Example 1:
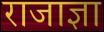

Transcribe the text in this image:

राजाज्ञा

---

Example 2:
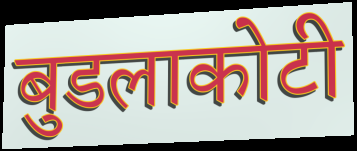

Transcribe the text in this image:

बुडलाकोटी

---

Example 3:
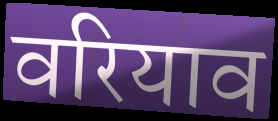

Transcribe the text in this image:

वरियाव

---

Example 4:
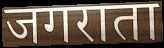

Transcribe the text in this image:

जगराता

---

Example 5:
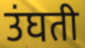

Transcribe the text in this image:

उंघती